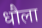
धौला